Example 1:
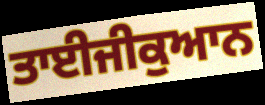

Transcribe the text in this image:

ਤਾਈਜੀਕੁਆਨ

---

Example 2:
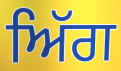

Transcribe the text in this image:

ਅਿੱਗ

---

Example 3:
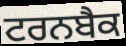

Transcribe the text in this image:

ਟਰਨਬੈਕ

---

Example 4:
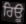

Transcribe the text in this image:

ਰਿਊ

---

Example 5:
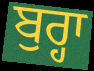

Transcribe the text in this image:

ਬੁਰ੍ਹਾ